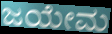
ಜಯೇಮ